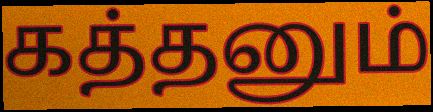
கத்தனும்